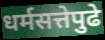
धर्मसत्तेपुढे